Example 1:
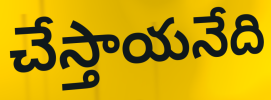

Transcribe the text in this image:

చేస్తాయనేది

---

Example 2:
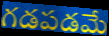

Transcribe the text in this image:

గడపడమే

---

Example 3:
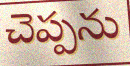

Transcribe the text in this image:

చెప్పను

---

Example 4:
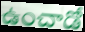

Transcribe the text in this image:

ఉంచాడో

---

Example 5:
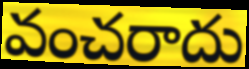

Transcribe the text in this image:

వంచరాదు